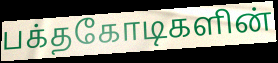
பக்தகோடிகளின்